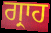
ਗ੍ਰਾਹ